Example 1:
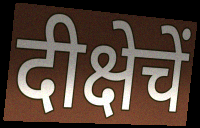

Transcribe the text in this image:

दीक्षेचें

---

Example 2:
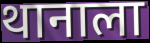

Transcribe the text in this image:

थानाला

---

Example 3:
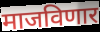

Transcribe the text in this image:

माजविणार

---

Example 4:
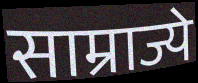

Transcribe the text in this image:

साम्राज्ये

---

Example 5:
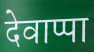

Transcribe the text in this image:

देवाप्पा